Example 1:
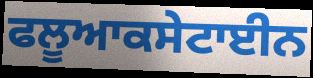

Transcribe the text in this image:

ਫਲੂਆਕਸੇਟਾਈਨ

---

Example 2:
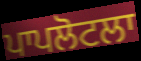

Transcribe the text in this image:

ਪਾਪਲੋਟਲਾ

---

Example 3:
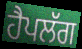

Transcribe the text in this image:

ਹੈਪਲੱਗ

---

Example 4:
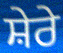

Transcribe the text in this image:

ਸ਼ੇਰੇ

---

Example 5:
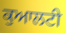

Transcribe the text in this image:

ਕੁਆਲਟੀ